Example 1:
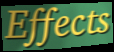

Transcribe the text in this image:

Effects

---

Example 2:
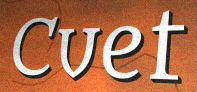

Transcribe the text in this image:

Cuet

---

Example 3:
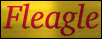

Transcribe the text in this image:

Fleagle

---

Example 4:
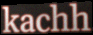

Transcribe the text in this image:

kachh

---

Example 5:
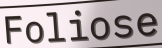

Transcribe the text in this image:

Foliose